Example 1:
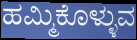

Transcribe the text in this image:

ಹಮ್ಮಿಕೊಳ್ಳುವ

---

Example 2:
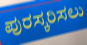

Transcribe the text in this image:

ಪುರಸ್ಕರಿಸಲು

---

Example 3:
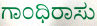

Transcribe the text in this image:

ಗಾಂಧಿರಾಸು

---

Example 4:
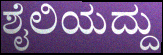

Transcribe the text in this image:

ಶೈಲಿಯದ್ದು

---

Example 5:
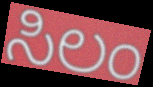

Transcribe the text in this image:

ಸಿಲಂ